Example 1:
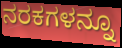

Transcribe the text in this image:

ನರಕಗಳನ್ನೂ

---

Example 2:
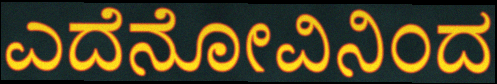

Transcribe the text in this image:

ಎದೆನೋವಿನಿಂದ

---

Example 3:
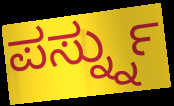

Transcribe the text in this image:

ಪರ್ಸ್ನ್ನು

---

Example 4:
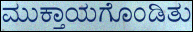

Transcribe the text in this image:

ಮುಕ್ತಾಯಗೊಂಡಿತು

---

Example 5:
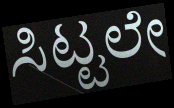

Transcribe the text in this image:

ಸಿಟ್ಟಲೇ